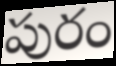
పురం